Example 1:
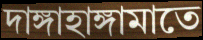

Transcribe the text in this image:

দাঙ্গাহাঙ্গামাতে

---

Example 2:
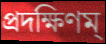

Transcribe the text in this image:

প্রদক্ষিণম্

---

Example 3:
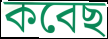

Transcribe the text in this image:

কবেছ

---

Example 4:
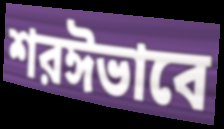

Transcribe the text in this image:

শরঈভাবে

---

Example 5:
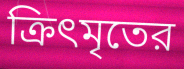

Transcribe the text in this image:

ক্রিৎমৃতের